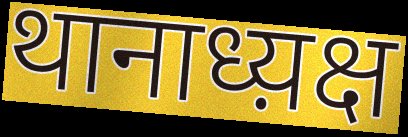
थानाध्य़क्ष